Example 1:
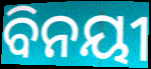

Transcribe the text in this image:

ବିନୟୀ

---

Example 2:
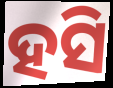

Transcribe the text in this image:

ହସି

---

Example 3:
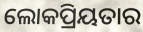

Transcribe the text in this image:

ଲୋକପ୍ରିୟତାର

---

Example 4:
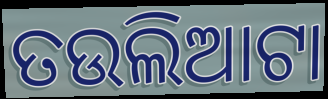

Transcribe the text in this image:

ତଉଲିଆଟା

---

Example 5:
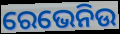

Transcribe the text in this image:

ରେଭେନିଉ